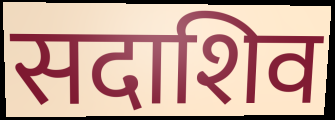
सदाशिव